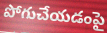
పోగుచేయడంపై